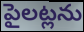
పైలట్లను